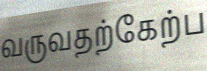
வருவதற்கேற்ப